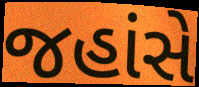
જહાંસે